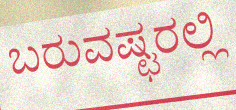
ಬರುವಷ್ಟರಲ್ಲಿ